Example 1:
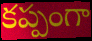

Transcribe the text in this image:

కప్పంగా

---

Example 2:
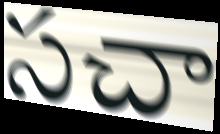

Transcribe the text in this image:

సచా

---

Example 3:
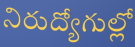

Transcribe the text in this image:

నిరుద్యోగుల్లో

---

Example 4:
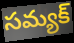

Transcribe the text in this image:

సమ్యక్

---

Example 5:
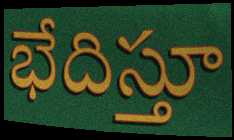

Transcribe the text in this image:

భేదిస్తూ